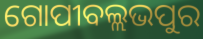
ଗୋପୀବଲ୍ଲଭପୁର